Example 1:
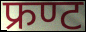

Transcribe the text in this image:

फ्रण्ट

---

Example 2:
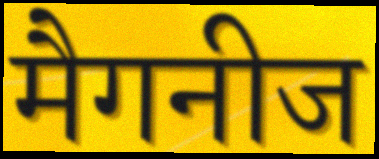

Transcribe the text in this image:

मैगनीज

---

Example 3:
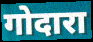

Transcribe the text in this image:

गोदारा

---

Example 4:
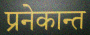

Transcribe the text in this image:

प्रनेकान्त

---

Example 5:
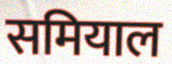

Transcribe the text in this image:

समियाल